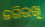
ଜଗିରଖି